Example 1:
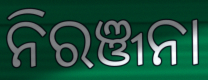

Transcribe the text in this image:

ନିରଞ୍ଜନା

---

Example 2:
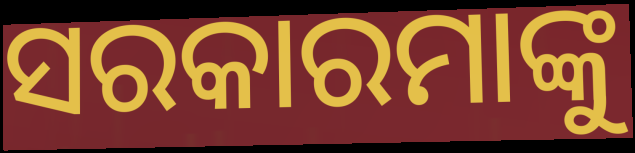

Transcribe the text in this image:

ସରକାରମାଙ୍କୁ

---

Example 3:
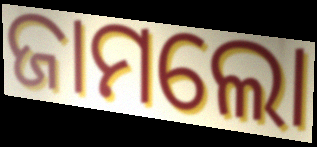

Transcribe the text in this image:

ଜାମଲୋ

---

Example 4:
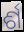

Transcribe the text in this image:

ର୍ଶ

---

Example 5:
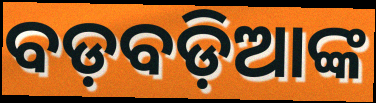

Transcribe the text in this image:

ବଡ଼ବଡ଼ିଆଙ୍କ